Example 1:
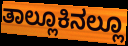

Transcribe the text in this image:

ತಾಲ್ಲೂಕಿನಲ್ಲೂ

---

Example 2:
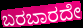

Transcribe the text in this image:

ಬರಬಾರದೇ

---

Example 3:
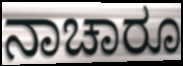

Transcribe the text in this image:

ನಾಚಾರೂ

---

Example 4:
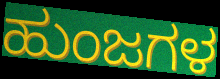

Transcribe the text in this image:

ಹುಂಜಗಳ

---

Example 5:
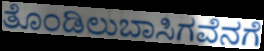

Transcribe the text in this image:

ತೊಂಡಿಲುಬಾಸಿಗವೆನಗೆ